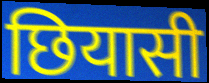
छियासी